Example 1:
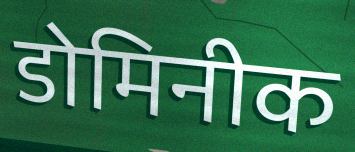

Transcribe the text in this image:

डोमिनीक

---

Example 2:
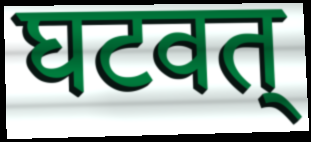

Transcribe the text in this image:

घटवत्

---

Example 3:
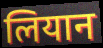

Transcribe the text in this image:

लियान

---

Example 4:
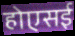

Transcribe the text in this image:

होएसई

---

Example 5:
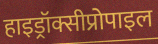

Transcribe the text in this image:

हाइड्रॉक्सीप्रोपाइल